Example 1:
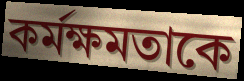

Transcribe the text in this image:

কর্মক্ষমতাকে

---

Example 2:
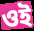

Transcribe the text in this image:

ওই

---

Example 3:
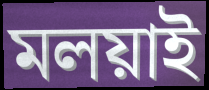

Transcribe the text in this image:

মলয়াই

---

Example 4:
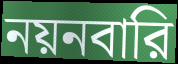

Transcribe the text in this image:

নয়নবারি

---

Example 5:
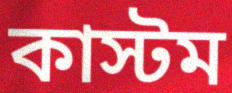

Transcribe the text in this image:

কাস্টম